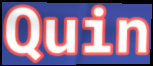
Quin